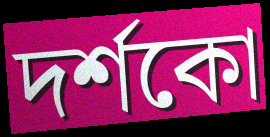
দৰ্শকো